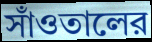
সাঁওতালের